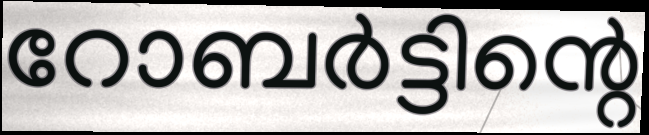
റോബർട്ടിന്റെ